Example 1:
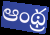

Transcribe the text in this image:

ఆంథ్ర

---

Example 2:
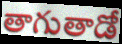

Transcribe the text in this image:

తాగుతాడో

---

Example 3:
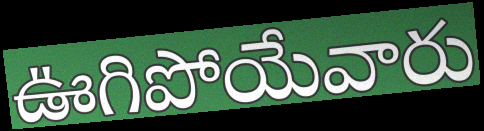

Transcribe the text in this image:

ఊగిపోయేవారు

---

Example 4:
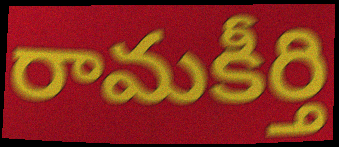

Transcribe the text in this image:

రామకీర్తి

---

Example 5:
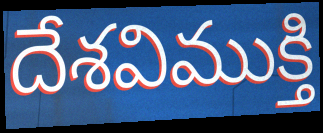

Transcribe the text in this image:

దేశవిముక్తి